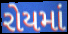
રોયમાં